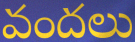
వందలు